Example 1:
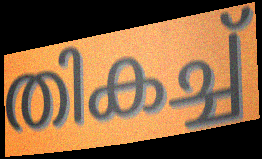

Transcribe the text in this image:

തികച്ച്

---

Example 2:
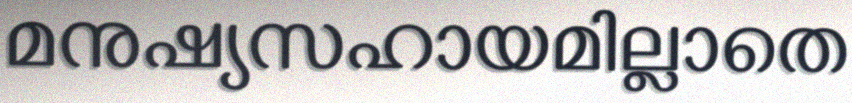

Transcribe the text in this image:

മനുഷ്യസഹായമില്ലാതെ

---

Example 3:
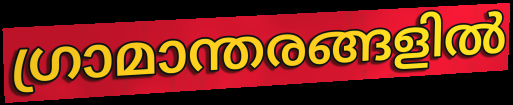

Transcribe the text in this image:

ഗ്രാമാന്തരങ്ങളിൽ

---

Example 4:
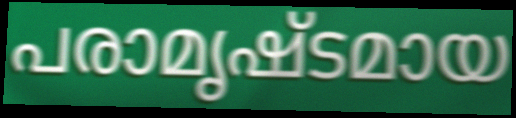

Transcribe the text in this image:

പരാമൃഷ്ടമായ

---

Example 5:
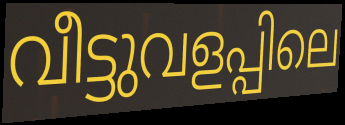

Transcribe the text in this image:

വീട്ടുവളപ്പിലെ